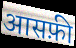
आसफ़ी